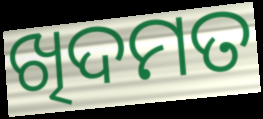
ଖିଦମତ